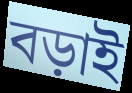
বড়াই